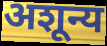
अशून्य